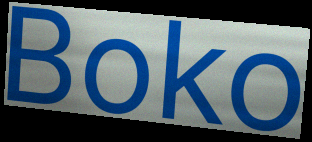
Boko